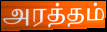
அரத்தம்